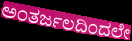
ಅಂತರ್ಜಲದಿಂದಲೇ